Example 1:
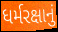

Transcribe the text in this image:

ધર્મરક્ષાનું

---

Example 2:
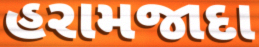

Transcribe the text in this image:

હરામજાદા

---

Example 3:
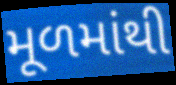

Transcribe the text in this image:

મૂળમાંથી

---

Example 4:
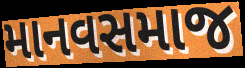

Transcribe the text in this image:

માનવસમાજ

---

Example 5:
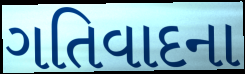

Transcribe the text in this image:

ગતિવાદના